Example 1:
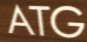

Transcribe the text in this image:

ATG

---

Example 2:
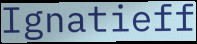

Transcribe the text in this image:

Ignatieff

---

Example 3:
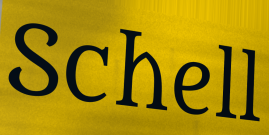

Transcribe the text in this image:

Schell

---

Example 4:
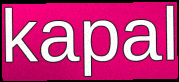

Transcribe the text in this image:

kapal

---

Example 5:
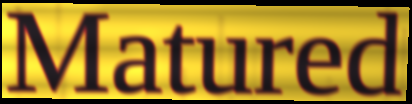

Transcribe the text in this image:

Matured